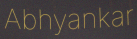
Abhyankar